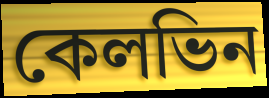
কেলভিন